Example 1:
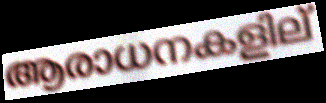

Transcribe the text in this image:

ആരാധനകളില്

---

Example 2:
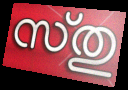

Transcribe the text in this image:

സ്തു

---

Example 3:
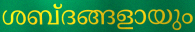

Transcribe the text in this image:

ശബ്ദങ്ങളായും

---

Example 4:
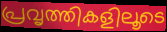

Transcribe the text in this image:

പ്രവൃത്തികളിലൂടെ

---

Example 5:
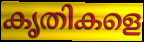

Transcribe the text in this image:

കൃതികളെ